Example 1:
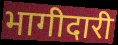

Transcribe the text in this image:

भागीदारी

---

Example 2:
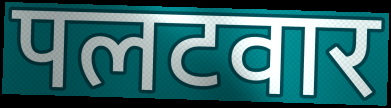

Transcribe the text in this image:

पलटवार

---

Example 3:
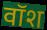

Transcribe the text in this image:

वॉश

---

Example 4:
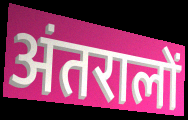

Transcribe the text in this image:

अंतरालों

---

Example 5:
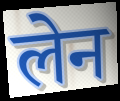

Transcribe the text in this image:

लेन